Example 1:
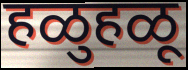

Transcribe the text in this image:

हळुहळू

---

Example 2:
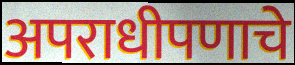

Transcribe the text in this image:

अपराधीपणाचे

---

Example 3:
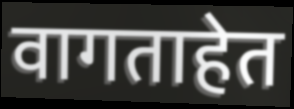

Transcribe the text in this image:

वागताहेत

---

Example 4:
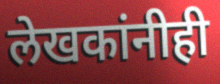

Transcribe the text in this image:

लेखकांनीही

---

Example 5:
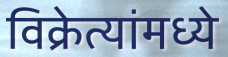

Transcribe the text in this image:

विक्रेत्यांमध्ये